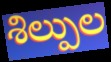
శిల్పుల